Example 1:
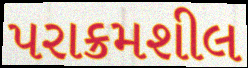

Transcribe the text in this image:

પરાક્રમશીલ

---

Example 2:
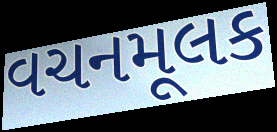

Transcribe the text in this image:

વચનમૂલક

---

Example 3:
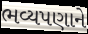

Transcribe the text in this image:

ભવ્યપણાને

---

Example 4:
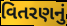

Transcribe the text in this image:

વિતરણનું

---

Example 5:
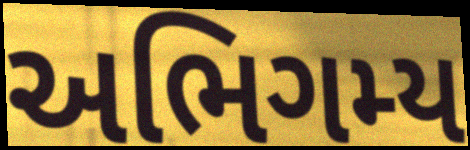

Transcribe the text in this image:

અભિગમ્ય